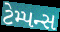
ટેમ્પન્સ